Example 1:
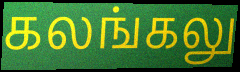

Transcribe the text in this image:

கலங்கலு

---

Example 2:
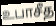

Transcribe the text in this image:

உபாசீத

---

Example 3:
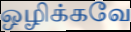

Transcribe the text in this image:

ஒழிக்கவே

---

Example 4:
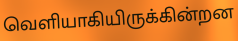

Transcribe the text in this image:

வெளியாகியிருக்கின்றன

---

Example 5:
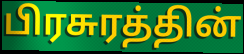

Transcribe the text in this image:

பிரசுரத்தின்